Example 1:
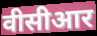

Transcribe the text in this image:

वीसीआर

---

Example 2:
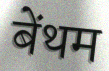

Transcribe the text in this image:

बेंथम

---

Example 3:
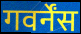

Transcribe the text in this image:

गवर्नेंस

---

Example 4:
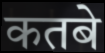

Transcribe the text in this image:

कतबे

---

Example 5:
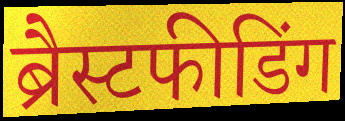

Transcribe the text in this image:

ब्रैस्टफीडिंग